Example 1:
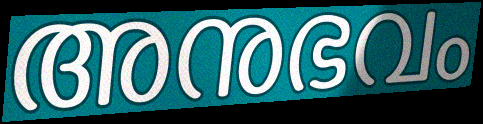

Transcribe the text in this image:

അനുഭവം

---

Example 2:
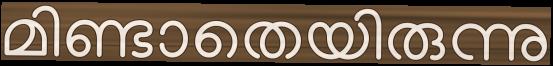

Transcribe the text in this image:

മിണ്ടാതെയിരുന്നു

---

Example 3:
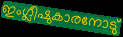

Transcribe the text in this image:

ഇംഗ്ലീഷുകാരനോടു്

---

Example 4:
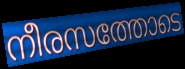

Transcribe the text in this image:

നീരസത്തോടെ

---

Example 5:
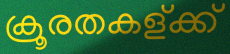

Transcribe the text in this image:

ക്രൂരതകള്ക്ക്